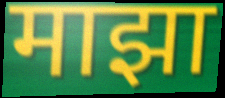
माझा